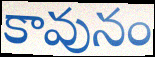
కావునం